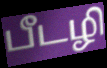
பீடழி